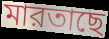
মারতাছে